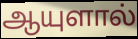
ஆயுளால்